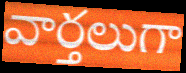
వార్తలుగా